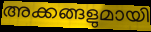
അക്കങ്ങളുമായി